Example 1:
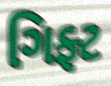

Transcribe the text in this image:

ગિફ્ટ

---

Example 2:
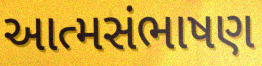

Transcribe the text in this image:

આત્મસંભાષણ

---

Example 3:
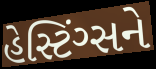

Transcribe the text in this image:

હેસ્ટિંગ્સને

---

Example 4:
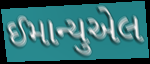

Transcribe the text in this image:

ઈમાન્યુએલ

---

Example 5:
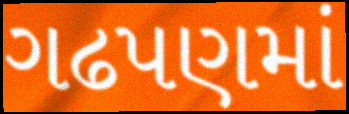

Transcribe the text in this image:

ગઢપણમાં